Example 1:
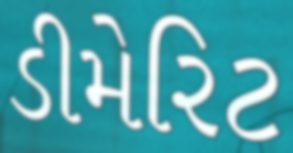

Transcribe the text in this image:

ડીમેરિટ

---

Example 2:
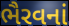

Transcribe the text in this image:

ભૈરવનાં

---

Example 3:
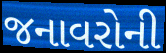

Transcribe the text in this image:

જનાવરોની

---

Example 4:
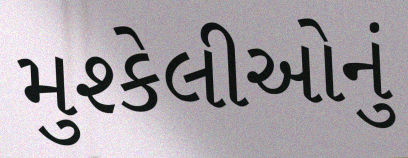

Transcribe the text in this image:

મુશ્કેલીઓનું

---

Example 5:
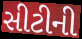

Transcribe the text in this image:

સીટીની